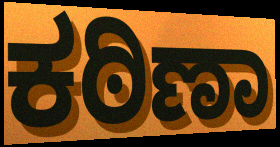
ಕಠಿಣಾ